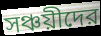
সঞ্চয়ীদের